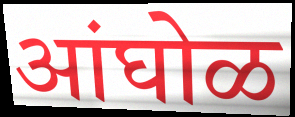
आंघोळ